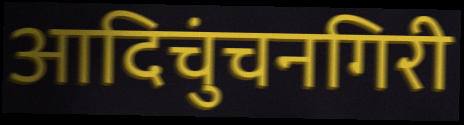
आदिचुंचनगिरी